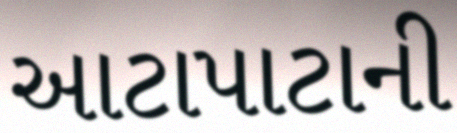
આટાપાટાની